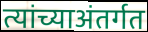
त्यांच्याअंतर्गत